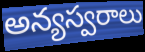
అన్యస్వరాలు